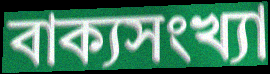
বাক্যসংখ্যা